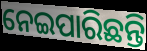
ନେଇପାରିଛନ୍ତି